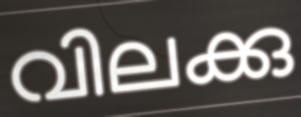
വിലക്കു